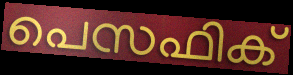
പെസഫിക്